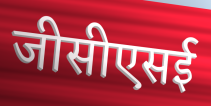
जीसीएसई